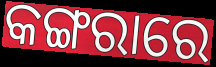
କଙ୍ଗରାରେ